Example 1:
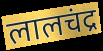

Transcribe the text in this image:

लालचंद्र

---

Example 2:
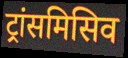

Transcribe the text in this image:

ट्रांसमिसिव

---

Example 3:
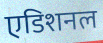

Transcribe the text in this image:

एडिशनल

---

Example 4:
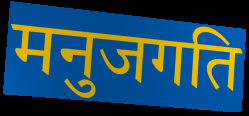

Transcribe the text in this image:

मनुजगति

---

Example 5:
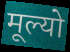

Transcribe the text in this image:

मूल्यो